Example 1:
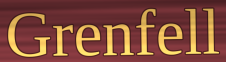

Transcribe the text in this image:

Grenfell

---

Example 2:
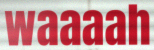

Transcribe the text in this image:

waaaah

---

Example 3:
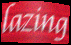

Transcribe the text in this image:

lazing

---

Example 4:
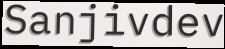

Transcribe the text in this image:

Sanjivdev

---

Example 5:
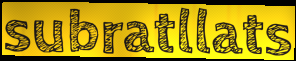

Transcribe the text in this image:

subratllats